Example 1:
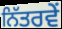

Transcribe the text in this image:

ਨਿੱਤਰਵੇਂ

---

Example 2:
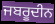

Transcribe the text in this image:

ਜਬਰੂਦੀਨ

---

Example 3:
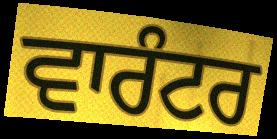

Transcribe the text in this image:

ਵਾਰੰਟਰ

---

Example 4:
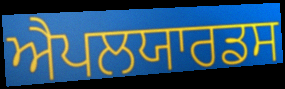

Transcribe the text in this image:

ਐਪਲਯਾਰਡਸ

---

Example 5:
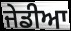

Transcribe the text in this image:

ਜੇਡੀਆ